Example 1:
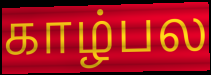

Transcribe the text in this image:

காழ்பல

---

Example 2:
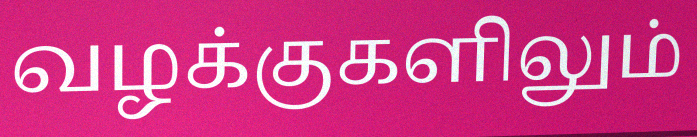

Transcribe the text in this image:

வழக்குகளிலும்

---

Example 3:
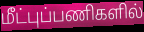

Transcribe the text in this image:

மீட்புப்பணிகளில்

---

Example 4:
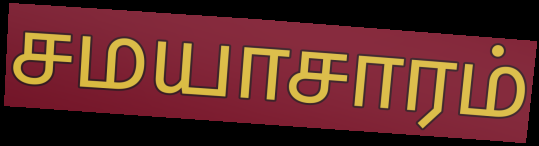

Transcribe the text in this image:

சமயாசாரம்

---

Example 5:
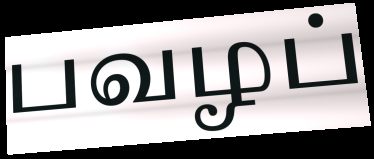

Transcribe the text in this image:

பவழப்